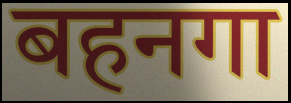
बहनगा